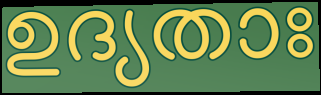
ഉദ്യതാഃ